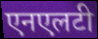
एनएलटी